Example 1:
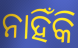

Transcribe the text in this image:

ନାହିଁକି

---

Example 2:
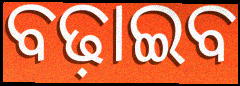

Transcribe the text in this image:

ବଢ଼ାଇବ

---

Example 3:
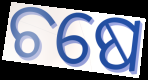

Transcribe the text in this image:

ଚଷେ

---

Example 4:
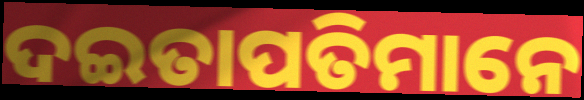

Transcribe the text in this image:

ଦଇତାପତିମାନେ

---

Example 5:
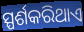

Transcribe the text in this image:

ସ୍ପର୍ଶକରିଥାଏ